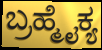
ಬ್ರಹ್ಮೈಕ್ಯ